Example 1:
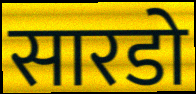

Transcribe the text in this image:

सारडो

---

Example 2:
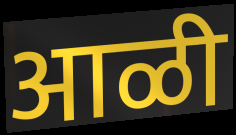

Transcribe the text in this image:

आळी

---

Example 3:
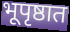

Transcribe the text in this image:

भूपृष्ठात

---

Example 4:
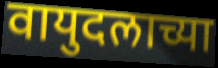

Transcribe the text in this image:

वायुदलाच्या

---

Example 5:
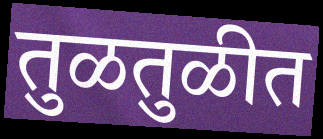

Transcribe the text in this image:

तुळतुळीत